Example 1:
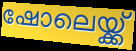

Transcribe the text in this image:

ഷോലെയ്ക്ക്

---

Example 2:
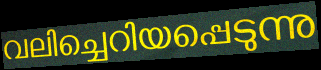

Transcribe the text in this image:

വലിച്ചെറിയപ്പെടുന്നു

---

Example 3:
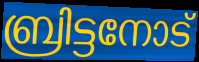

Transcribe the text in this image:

ബ്രിട്ടനോട്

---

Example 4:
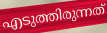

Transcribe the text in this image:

എടുത്തിരുന്നത്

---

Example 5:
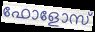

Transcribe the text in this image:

ഫോളോസ്